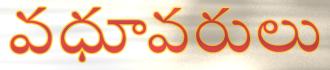
వధూవరులు